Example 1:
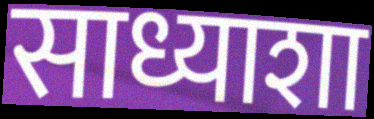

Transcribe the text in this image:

साध्याशा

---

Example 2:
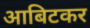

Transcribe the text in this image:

आबिटकर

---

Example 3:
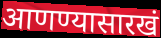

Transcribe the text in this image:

आणण्यासारखं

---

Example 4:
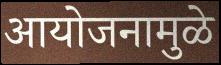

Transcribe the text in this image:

आयोजनामुळे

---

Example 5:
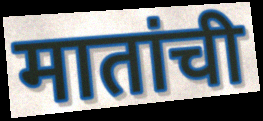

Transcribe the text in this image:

मातांची